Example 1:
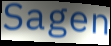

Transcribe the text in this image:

Sagen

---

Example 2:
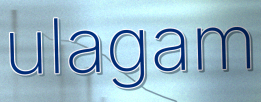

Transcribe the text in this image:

ulagam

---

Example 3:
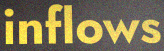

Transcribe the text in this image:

inflows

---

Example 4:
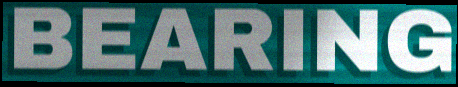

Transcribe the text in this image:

BEARING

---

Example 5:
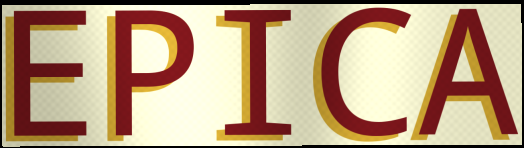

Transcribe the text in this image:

EPICA